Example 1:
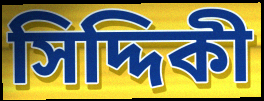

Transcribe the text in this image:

সিদ্দিকী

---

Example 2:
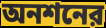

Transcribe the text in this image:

অনশনের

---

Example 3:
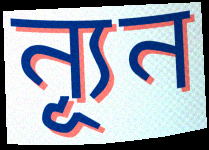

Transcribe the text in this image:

ন্যূন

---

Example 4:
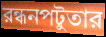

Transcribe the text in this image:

রন্ধনপটুতার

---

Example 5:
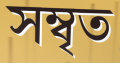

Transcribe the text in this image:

সম্বৃত